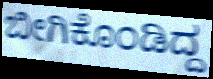
ಬೀಗಿಕೊಂಡಿದ್ದ